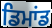
ਡਿਮਾਂਡ